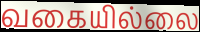
வகையில்லை